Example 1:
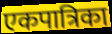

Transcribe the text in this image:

एकपात्रिका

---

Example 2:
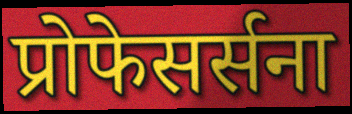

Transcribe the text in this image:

प्रोफेसर्सना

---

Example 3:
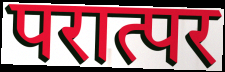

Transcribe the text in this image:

परात्पर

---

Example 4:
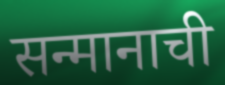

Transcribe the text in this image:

सन्मानाची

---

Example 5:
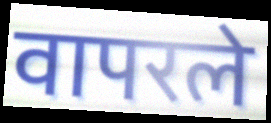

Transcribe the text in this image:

वापरले